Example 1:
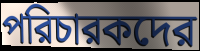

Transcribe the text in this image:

পরিচারকদের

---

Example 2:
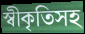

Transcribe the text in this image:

স্বীকৃতিসহ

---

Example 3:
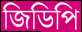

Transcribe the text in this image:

জিডিপি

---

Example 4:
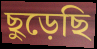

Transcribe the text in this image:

ছুড়েছি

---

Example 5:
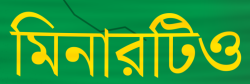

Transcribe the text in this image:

মিনারটিও